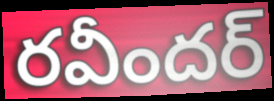
రవీందర్